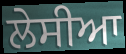
ਲੇਸੀਆ